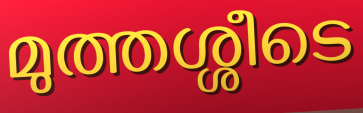
മുത്തശ്ശീടെ